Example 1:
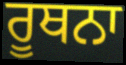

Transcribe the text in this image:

ਰੂਥਨਾ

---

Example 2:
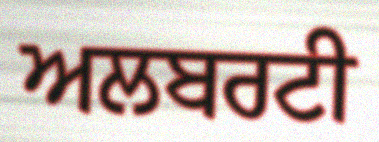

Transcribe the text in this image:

ਅਲਬਰਟੀ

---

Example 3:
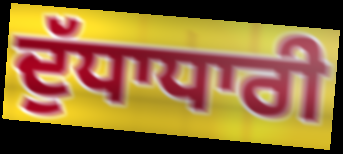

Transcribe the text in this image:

ਦੁੱਧਾਧਾਰੀ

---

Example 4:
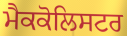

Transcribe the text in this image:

ਮੈਕਕੋਲਿਸਟਰ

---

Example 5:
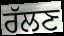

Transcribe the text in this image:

ਰੱਲਣ